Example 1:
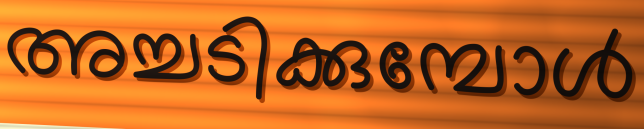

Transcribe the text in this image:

അച്ചടിക്കുമ്പോൾ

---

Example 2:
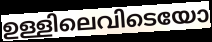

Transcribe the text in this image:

ഉള്ളിലെവിടെയോ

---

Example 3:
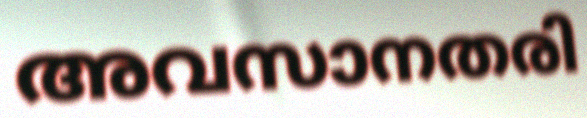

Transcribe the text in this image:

അവസാനതരി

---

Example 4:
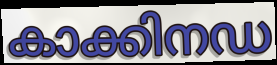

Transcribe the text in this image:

കാക്കിനഡ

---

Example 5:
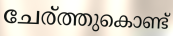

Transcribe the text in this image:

ചേര്ത്തുകൊണ്ട്